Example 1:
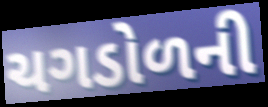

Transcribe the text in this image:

ચગડોળની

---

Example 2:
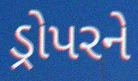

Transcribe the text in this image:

ડ્રોપરને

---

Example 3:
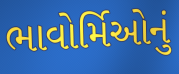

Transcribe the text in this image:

ભાવોર્મિઓનું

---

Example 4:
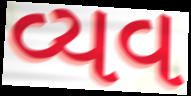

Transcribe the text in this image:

વ્યવ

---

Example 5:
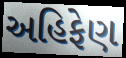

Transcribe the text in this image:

અહિફેણ